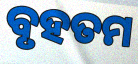
ବୃହତମ